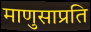
माणुसाप्रति